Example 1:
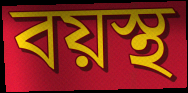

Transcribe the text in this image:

বয়স্থ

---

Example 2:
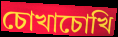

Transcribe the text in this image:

চোখাচোখি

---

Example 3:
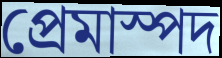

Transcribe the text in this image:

প্রেমাস্পদ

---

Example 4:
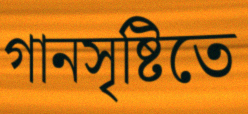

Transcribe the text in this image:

গানসৃষ্টিতে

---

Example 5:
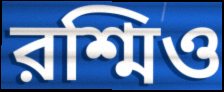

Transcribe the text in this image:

রশ্মিও